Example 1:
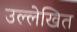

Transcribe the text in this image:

उल्लेखित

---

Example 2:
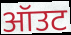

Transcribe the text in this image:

ऑउट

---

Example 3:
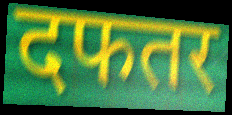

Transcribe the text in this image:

दफतर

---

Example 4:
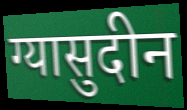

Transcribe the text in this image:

ग्यासुदीन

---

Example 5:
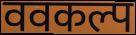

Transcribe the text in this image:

ववकल्प